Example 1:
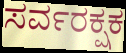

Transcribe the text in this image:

ಸರ್ವರಕ್ಷಕ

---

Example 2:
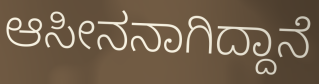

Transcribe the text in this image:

ಆಸೀನನಾಗಿದ್ದಾನೆ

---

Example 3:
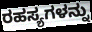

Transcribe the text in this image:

ರಹಸ್ಯಗಳನ್ನು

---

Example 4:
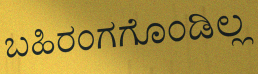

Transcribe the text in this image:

ಬಹಿರಂಗಗೊಂಡಿಲ್ಲ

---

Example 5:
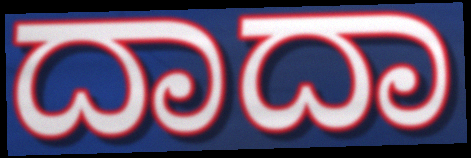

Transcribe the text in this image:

ದಾದಾ